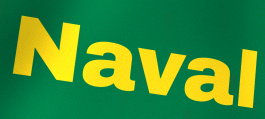
Naval